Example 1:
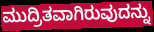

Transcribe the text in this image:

ಮುದ್ರಿತವಾಗಿರುವುದನ್ನು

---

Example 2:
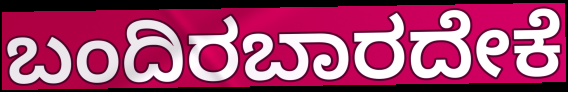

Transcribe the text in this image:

ಬಂದಿರಬಾರದೇಕೆ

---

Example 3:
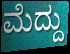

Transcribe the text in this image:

ಮೆದ್ದು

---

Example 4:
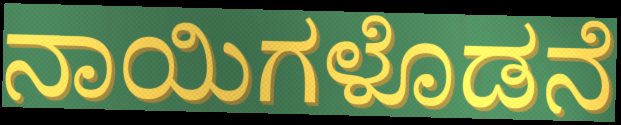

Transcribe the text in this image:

ನಾಯಿಗಳೊಡನೆ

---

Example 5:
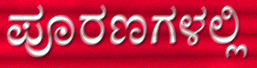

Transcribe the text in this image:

ಪೂರಣಗಳಲ್ಲಿ